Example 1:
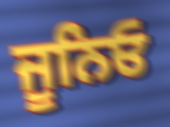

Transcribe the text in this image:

ਜੂਨਿਓ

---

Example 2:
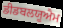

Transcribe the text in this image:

ਡੀਡਬਲਯੂਐਮ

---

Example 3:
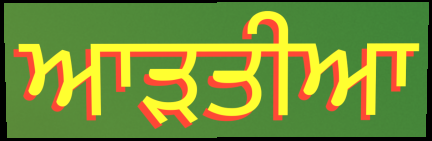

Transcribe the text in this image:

ਆੜਤੀਆ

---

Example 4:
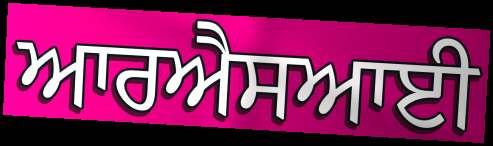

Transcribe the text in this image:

ਆਰਐਸਆਈ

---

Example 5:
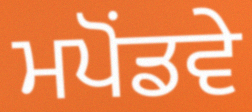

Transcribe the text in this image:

ਮਪੋਂਡਵੇ